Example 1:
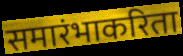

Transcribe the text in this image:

समारंभाकरिता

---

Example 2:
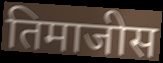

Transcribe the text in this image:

तिमाजीस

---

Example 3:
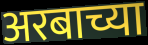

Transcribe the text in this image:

अरबाच्या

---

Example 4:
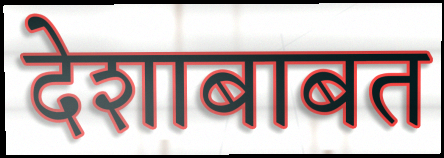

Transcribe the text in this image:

देशाबाबत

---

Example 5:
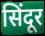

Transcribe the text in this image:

सिंदूर